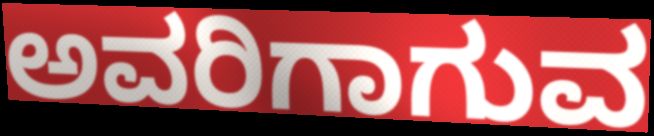
ಅವರಿಗಾಗುವ